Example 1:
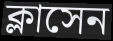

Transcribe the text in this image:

ক্লাসেন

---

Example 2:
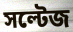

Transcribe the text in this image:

সল্টেজ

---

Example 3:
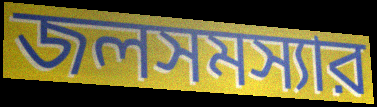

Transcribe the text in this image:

জলসমস্যার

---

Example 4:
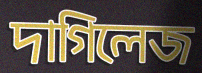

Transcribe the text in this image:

দাগিলেজ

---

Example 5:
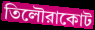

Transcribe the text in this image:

তিলৌরাকোট